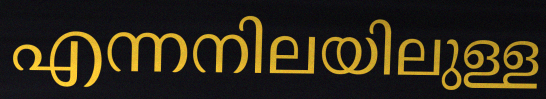
എന്നനിലയിലുള്ള